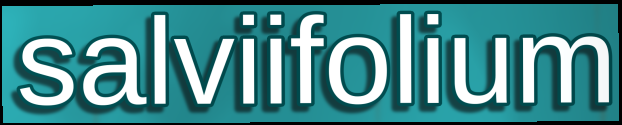
salviifolium